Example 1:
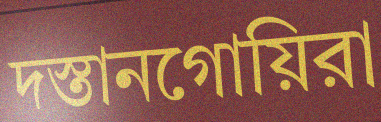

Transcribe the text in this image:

দস্তানগোয়িরা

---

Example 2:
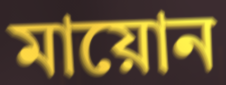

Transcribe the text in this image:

মায়োন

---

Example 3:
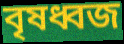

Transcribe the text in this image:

বৃষধ্বজ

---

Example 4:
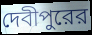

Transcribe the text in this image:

দেবীপুরের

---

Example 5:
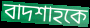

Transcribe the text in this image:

বাদশাহকে